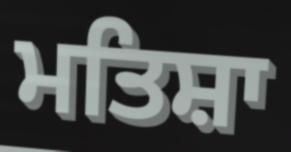
ਮਤਿਸ਼ਾ